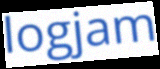
logjam